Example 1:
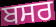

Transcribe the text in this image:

ਬਸਰ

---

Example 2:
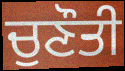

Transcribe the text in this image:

ਚੁਣੌਤੀ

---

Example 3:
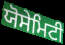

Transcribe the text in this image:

ਯੋਸੇਮਿਟੀ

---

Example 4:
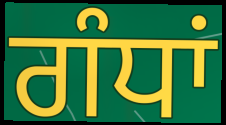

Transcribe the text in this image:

ਗੰਧਾਂ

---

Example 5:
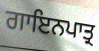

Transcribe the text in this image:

ਗਾਇਨਪਾਤ੍ਰ